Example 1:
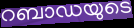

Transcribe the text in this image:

റബാഡയുടെ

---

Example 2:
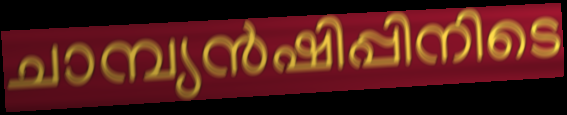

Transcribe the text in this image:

ചാമ്പ്യൻഷിപ്പിനിടെ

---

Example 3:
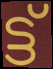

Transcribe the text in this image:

ട്ട്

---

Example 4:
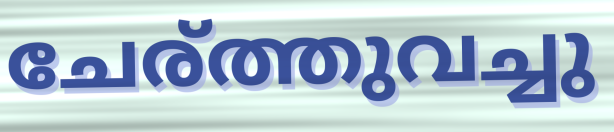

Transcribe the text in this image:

ചേര്ത്തുവച്ചു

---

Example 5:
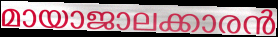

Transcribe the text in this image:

മായാജാലക്കാരൻ